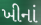
ખીનાં